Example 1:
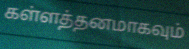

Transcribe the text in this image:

கள்ளத்தனமாகவும்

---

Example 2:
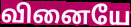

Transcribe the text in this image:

வினையே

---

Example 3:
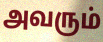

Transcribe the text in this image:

அவரும்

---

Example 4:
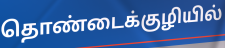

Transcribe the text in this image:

தொண்டைக்குழியில்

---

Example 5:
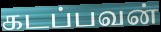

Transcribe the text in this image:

கடப்பவன்